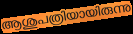
ആശുപത്രിയായിരുന്നു